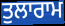
ਤੁਲਾਰਾਮ